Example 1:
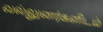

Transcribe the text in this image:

வல்லுனர்களிடம்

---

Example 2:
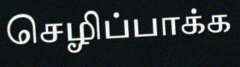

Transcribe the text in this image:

செழிப்பாக்க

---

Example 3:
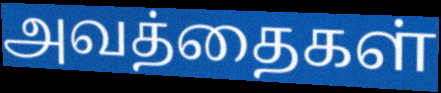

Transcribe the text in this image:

அவத்தைகள்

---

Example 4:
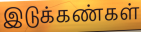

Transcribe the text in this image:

இடுக்கண்கள்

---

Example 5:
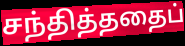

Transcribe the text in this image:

சந்தித்ததைப்